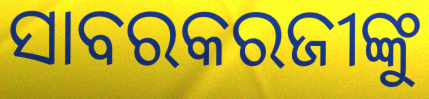
ସାବରକରଜୀଙ୍କୁ